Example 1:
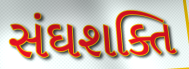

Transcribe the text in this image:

સંઘશક્તિ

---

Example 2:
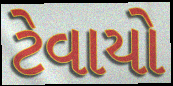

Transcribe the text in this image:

ટેવાયો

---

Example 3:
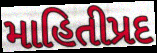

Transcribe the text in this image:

માહિતીપ્રદ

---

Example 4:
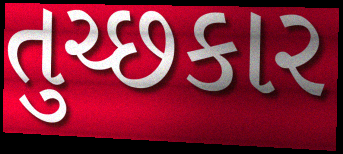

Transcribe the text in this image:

તુચ્છકાર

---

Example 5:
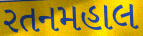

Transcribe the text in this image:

રતનમહાલ